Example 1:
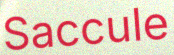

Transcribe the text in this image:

Saccule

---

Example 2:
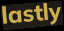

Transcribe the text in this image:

lastly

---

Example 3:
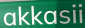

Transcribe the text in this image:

akkasii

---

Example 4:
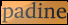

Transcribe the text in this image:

padine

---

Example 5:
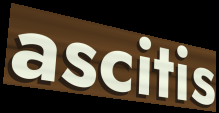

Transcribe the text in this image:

ascitis